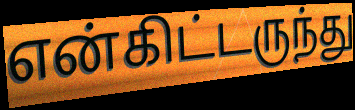
என்கிட்டருந்து